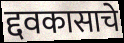
द्दवकासाचे